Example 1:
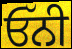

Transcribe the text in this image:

ਓੱਨੀ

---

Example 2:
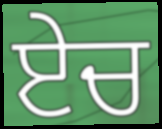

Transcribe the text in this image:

ਏਚ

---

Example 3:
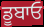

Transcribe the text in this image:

ਡੂਬਾਓ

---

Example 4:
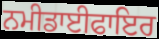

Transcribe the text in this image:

ਨਮੀਡਾਈਫਾਇਰ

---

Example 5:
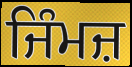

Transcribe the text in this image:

ਜਿੰਮਜ਼